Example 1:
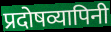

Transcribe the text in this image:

प्रदोषव्यापिनी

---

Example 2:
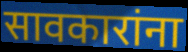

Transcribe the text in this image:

सावकारांना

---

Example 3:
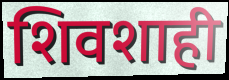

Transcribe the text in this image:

शिवशाही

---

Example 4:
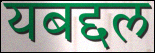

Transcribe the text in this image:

यबद्दल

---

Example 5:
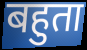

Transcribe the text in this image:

बहुता